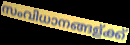
സംവിധാനങ്ങള്ക്ക്